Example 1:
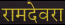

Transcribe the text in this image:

रामदेवरा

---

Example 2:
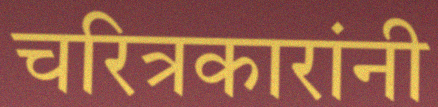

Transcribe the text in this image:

चरित्रकारांनी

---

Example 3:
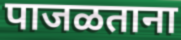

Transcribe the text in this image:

पाजळताना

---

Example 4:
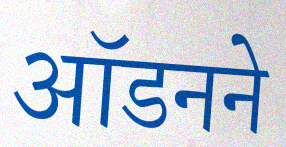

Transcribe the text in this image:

ऑडनने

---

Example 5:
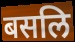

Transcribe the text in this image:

बसलि